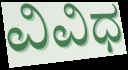
ವಿವಿಧ